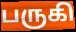
பருகி